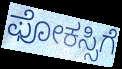
ಫೋಕಸ್ಸಿಗೆ